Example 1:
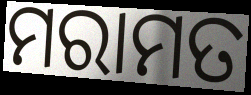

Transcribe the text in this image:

ମରାମତ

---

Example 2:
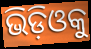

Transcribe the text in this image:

ଭିଡ଼ିଓକୁ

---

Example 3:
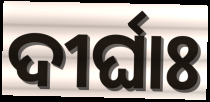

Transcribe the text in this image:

ଦୀର୍ଘାଃ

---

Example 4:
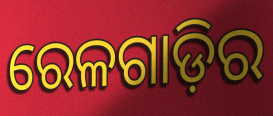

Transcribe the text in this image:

ରେଳଗାଡ଼ିର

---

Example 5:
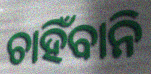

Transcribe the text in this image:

ଚାହିଁବାନି